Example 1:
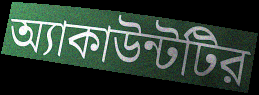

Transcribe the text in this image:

অ্যাকাউন্টটির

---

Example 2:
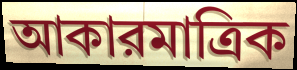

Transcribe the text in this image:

আকারমাত্রিক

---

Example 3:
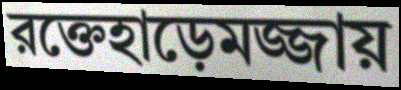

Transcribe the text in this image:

রক্তেহাড়েমজ্জায়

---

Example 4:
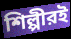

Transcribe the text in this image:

শিল্পীরই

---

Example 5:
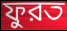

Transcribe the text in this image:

ফুরত